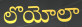
లొయోలా